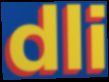
dli